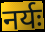
नर्यः